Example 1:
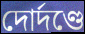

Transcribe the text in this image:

দোর্দণ্ডে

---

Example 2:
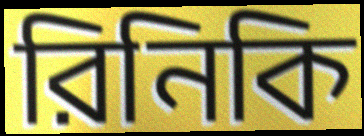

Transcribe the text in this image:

রিনিকি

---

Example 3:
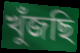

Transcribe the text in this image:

খুঁজছি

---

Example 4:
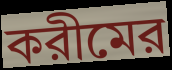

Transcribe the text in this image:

করীমের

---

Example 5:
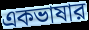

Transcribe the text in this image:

একভাষার